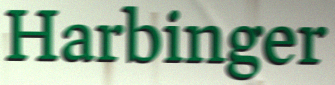
Harbinger